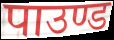
पाउण्‍ड